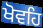
ਖੋਵਹਿ